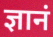
ज्ञानं